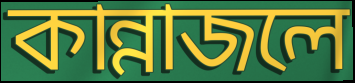
কান্নাজলে